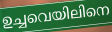
ഉച്ചവെയിലിനെ